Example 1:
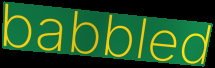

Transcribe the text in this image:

babbled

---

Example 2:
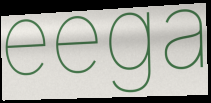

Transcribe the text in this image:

eega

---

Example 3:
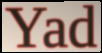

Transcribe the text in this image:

Yad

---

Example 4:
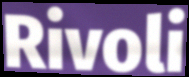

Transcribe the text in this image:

Rivoli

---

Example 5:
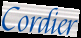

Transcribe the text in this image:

Cordier